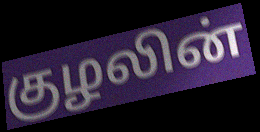
குழலின்